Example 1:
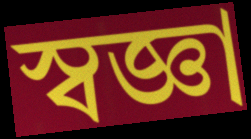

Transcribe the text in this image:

স্বজ্ঞা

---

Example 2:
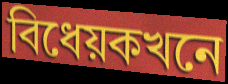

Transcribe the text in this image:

বিধেয়কখনে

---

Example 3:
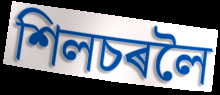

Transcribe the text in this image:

শিলচৰলৈ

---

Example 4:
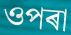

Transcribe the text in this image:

ওপৰা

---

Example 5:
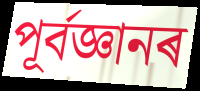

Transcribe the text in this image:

পূৰ্বজ্ঞানৰ